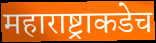
महाराष्ट्राकडेच